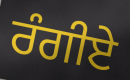
ਰੰਗੀਏ